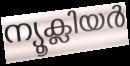
ന്യൂക്ലിയർ